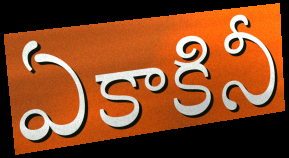
ఏకాకినీ